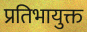
प्रतिभायुक्त